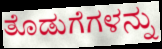
ತೊಡುಗೆಗಳನ್ನು